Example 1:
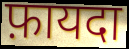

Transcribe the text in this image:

फ़ायदा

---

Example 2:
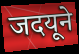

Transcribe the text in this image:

जदयूने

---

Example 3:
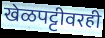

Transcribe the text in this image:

खेळपट्टीवरही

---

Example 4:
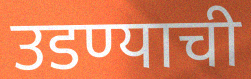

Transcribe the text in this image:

उडण्याची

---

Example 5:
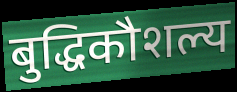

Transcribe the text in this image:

बुद्धिकौशल्य